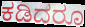
ಕಡಿದರೂ